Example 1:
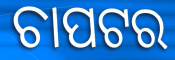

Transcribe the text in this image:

ଚାପଟର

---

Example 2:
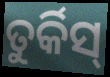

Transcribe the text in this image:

ତୁର୍କିସ୍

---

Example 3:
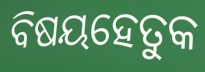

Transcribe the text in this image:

ବିଷୟହେତୁକ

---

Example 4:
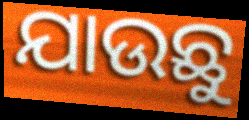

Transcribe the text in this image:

ଯାଉଛୁ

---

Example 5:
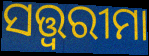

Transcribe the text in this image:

ସତ୍ତ୍ୱରୀମା